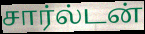
சார்ல்டன்